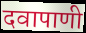
दवापाणी